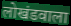
लोखंडवाला